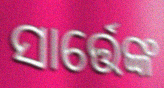
ସାର୍ତ୍ତେଙ୍କ